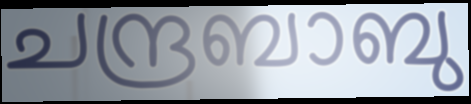
ചന്ദ്രബാബു